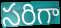
సరిగా